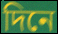
দিনে